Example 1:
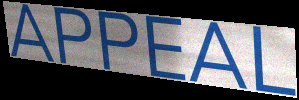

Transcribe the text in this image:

APPEAL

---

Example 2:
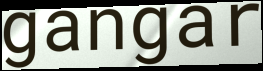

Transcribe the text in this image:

gangar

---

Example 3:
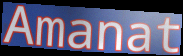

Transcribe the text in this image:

Amanat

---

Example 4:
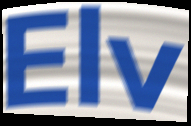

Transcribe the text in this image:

Elv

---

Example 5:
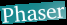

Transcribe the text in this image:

Phaser